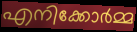
എനിക്കോർമ്മ